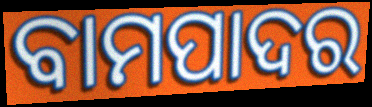
ବାମପାଦର